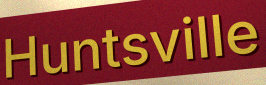
Huntsville